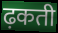
ढ़कती